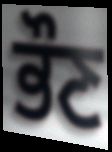
ਭੌਣ